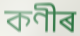
কণীৰ